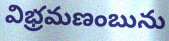
విభ్రమణంబును